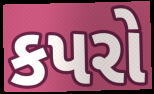
કપરો